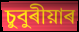
চুবুৰীয়াৰ